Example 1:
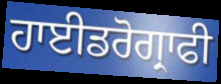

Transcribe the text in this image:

ਹਾਈਡਰੋਗ੍ਰਾਫੀ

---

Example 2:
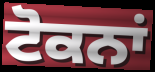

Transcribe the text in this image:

ਟੋਕਨਾਂ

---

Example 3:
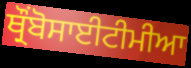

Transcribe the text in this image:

ਥ੍ਰੌਂਬੋਸਾਈਟੀਮੀਆ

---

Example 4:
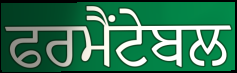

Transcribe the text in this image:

ਫਰਮੈਂਟੇਬਲ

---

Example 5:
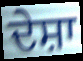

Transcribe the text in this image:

ਦੇਸ਼ਾ